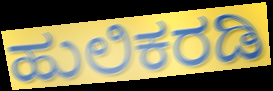
ಹುಲಿಕರಡಿ